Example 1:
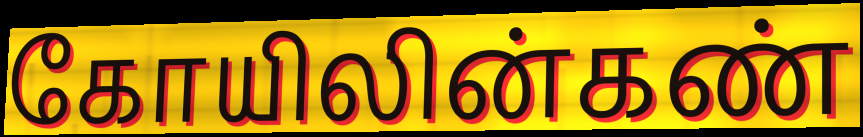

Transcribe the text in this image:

கோயிலின்கண்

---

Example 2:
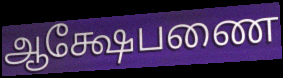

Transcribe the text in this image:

ஆக்ஷேபணை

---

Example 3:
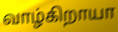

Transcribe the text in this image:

வாழ்கிறாயா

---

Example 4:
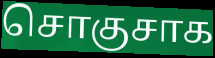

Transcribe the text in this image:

சொகுசாக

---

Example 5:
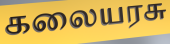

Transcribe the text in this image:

கலையரசு